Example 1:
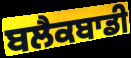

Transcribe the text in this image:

ਬਲੈਕਬਾਡੀ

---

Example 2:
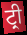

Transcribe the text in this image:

ਟ੍ਰੀ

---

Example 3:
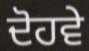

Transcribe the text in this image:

ਦੋਹਵੇ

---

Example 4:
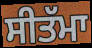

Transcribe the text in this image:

ਸੀਤੱਮਾ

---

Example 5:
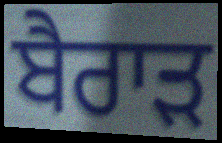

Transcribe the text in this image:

ਬੈਰਾੜ